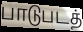
பாடுபடத்